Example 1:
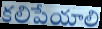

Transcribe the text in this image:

కలిపేయాలి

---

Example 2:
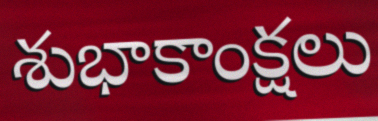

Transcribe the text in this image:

శుభాకాంక్షలు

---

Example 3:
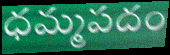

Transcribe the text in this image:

ధమ్మపదం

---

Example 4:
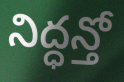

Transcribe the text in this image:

నిద్ధన్తో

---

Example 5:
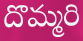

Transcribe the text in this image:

దొమ్మరి